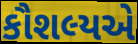
કૌશલ્યએ